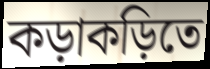
কড়াকড়িতে